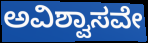
ಅವಿಶ್ವಾಸವೇ